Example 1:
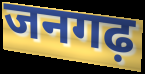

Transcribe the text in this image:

जनगढ़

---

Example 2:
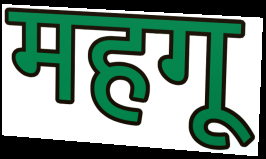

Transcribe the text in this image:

महगू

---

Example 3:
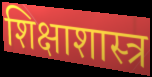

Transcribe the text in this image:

शिक्षाशास्त्र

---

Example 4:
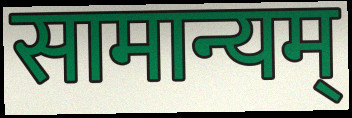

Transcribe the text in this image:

सामान्यम्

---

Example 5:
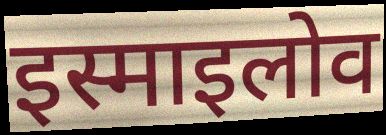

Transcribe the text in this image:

इस्माइलोव